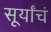
सूर्यांचं